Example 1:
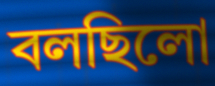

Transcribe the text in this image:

বলছিলো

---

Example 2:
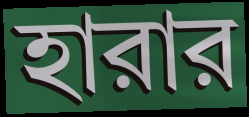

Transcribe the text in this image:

হারার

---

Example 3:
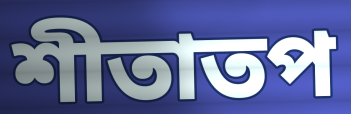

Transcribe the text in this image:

শীতাতপ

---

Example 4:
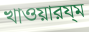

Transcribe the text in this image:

খাওয়ারয্ম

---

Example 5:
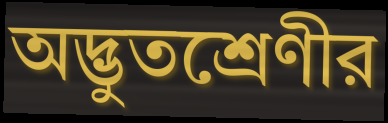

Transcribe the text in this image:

অদ্ভুতশ্রেণীর